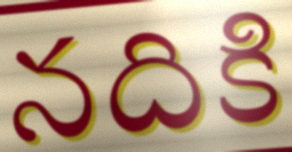
నదికి